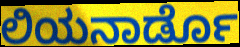
ಲಿಯನಾರ್ಡೊ